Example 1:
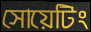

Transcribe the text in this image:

সোয়েটিং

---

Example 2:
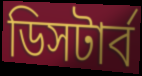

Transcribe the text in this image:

ডিসটার্ব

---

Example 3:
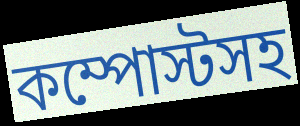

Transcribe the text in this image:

কম্পোস্টসহ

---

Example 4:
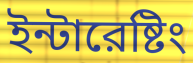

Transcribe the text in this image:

ইন্টারেষ্টিং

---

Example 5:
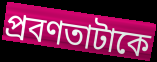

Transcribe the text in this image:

প্রবণতাটাকে